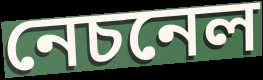
নেচনেল